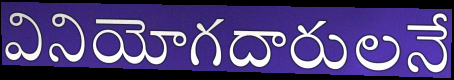
వినియోగదారులనే